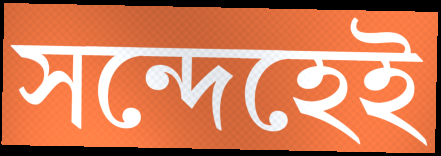
সন্দেহেই